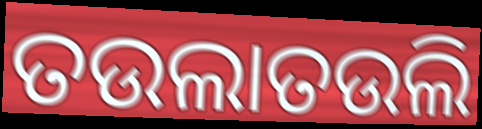
ତଉଲାତଉଲି